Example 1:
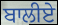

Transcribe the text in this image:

ਬਾਲੀਏ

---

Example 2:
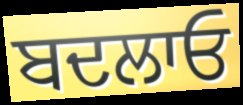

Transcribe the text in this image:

ਬਦਲਾਓ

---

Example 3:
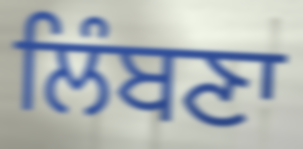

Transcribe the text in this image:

ਲਿੰਬਣਾ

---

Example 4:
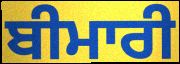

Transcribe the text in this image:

ਬੀਮਾਰੀ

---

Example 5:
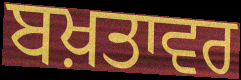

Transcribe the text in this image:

ਬਖ਼ਤਾਵਰ